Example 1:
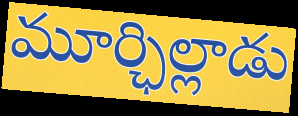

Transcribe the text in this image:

మూర్ఛిల్లాడు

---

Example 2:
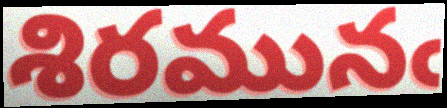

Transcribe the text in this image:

శిరమునఁ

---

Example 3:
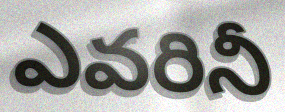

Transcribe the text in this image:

ఎవరినీ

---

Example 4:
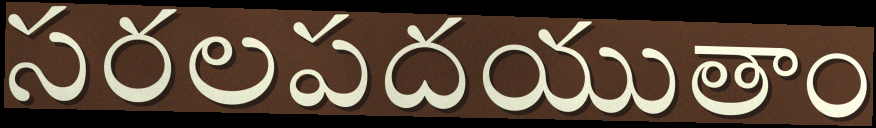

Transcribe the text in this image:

సరలపదయుతాం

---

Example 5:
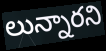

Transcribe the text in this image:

లున్నారని